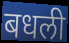
बधली